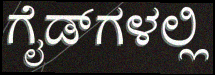
ಗೈಡ್‌ಗಳಲ್ಲಿ